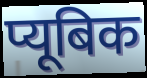
प्यूबिक